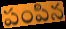
పంపిన